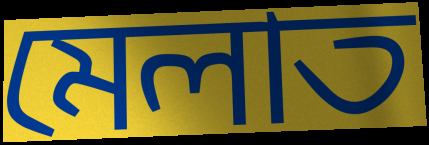
মেলাত